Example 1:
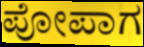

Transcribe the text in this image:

ಪೋಪಾಗ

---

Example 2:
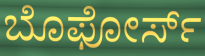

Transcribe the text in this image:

ಬೊಫೋರ್ಸ್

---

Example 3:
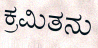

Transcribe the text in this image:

ಕ್ರಮಿತನು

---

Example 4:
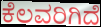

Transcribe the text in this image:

ಕೆಲವರಿಗಿದೆ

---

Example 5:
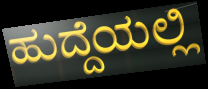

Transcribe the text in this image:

ಹುದ್ದೆಯಲ್ಲಿ